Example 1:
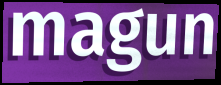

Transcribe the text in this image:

magun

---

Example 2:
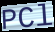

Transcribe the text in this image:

PCl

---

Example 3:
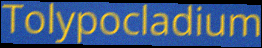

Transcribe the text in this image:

Tolypocladium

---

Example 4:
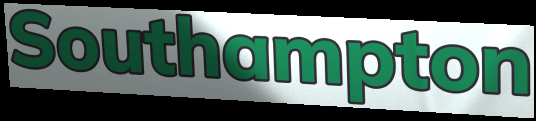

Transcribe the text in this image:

Southampton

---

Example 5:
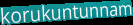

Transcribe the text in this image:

korukuntunnam